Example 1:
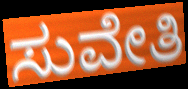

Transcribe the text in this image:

ಸುವೇತಿ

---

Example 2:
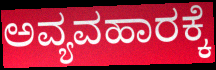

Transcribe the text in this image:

ಅವ್ಯವಹಾರಕ್ಕೆ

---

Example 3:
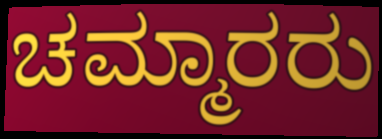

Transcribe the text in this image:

ಚಮ್ಮಾರರು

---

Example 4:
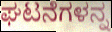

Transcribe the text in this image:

ಘಟನೆಗಳನ್ನ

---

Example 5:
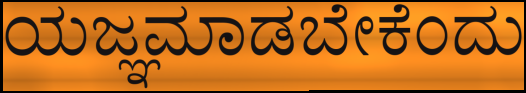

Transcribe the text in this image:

ಯಜ್ಞಮಾಡಬೇಕೆಂದು